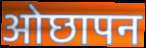
ओछापन